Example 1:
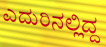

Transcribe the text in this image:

ಎದುರಿನಲ್ಲಿದ್ದ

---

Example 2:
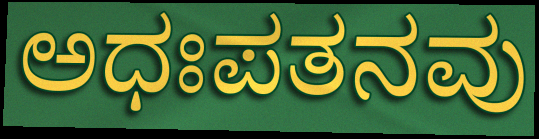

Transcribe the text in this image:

ಅಧಃಪತನವು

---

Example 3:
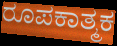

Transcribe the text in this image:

ರೂಪಕಾತ್ಮಕ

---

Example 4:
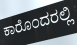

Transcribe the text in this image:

ಕಾರೊಂದರಲ್ಲಿ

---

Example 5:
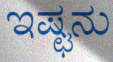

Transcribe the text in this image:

ಇಷ್ಟನು